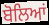
ਬੋਲਿਆਂ